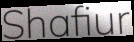
Shafiur